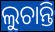
ଲୁଚାନ୍ତି